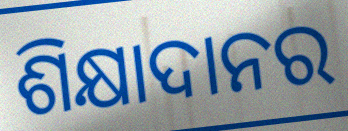
ଶିକ୍ଷାଦାନର